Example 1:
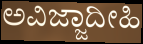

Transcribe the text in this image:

ಅವಿಜ್ಜಾದೀಹಿ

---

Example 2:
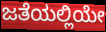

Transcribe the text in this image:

ಜತೆಯಲ್ಲಿಯೇ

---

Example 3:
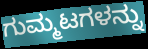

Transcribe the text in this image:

ಗುಮ್ಮಟಗಳನ್ನು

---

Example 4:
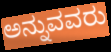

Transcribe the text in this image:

ಅನ್ನುವವರು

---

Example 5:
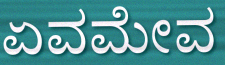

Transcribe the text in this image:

ಏವಮೇವ